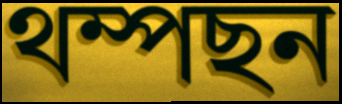
থম্পছন